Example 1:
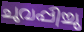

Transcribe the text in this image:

ചുവപ്പിച്ചു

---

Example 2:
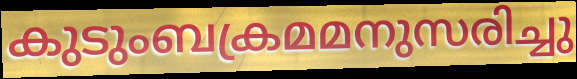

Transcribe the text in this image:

കുടുംബക്രമമനുസരിച്ചു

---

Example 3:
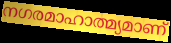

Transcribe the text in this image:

നഗരമാഹാത്മ്യമാണ്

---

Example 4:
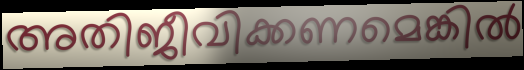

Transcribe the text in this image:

അതിജീവിക്കണമെങ്കിൽ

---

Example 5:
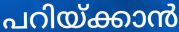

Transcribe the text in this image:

പറിയ്ക്കാൻ